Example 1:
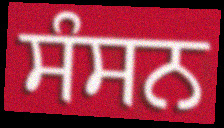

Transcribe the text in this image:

ਸੰਸਨ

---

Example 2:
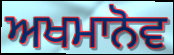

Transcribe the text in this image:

ਅਖਮਾਨੋਵ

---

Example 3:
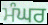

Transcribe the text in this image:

ਮੰਘਰ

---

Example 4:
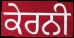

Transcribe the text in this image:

ਕੇਰਨੀ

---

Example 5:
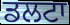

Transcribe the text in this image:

ਡਲਟਾ